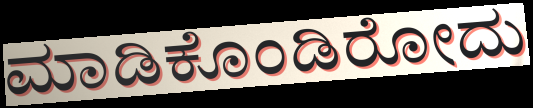
ಮಾಡಿಕೊಂಡಿರೋದು